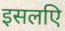
इसलएि